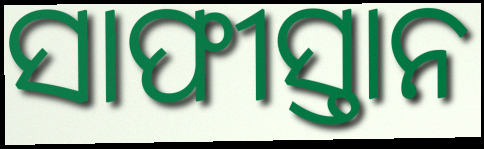
ସାଫୀସ୍ତାନ